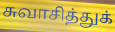
சுவாசித்துக்